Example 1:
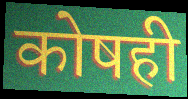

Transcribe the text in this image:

कोषही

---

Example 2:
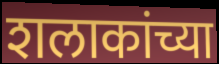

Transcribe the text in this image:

शलाकांच्या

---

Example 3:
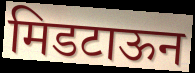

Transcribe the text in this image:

मिडटाऊन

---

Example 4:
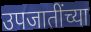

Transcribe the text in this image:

उपजातींच्या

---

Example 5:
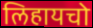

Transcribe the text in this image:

लिहायचो